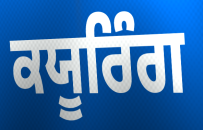
ਕਯੂਰਿੰਗ